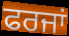
ਫਰਜਾਂ